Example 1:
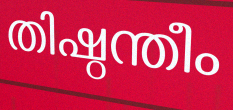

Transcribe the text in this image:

തിഷ്ഠന്തീം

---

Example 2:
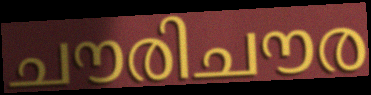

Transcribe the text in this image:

ചൗരിചൗര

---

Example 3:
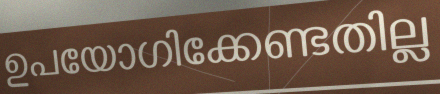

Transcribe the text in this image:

ഉപയോഗിക്കേണ്ടതില്ല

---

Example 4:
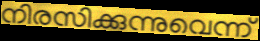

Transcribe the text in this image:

നിരസിക്കുന്നുവെന്ന്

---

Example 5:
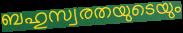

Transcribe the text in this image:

ബഹുസ്വരതയുടെയും